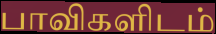
பாவிகளிடம்